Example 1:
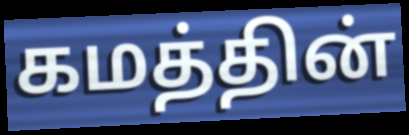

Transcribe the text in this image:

கமத்தின்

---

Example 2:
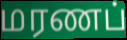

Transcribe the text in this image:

மரணப்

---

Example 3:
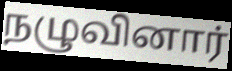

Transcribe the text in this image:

நழுவினார்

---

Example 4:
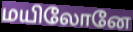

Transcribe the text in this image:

மயிலோனே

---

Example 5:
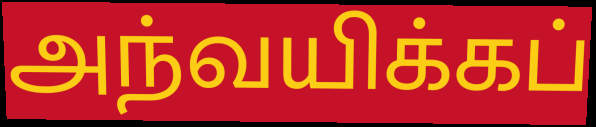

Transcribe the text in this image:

அந்வயிக்கப்